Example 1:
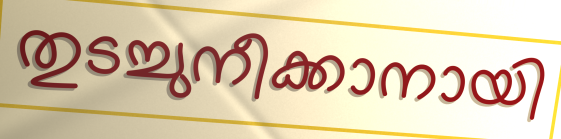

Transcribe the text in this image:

തുടച്ചുനീക്കാനായി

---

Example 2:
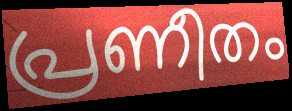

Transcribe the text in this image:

പ്രണീതം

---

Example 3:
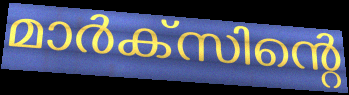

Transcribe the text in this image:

മാർക്‌സിന്റെ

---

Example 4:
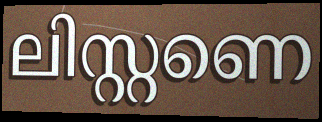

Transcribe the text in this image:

ലിസ്റ്റണെ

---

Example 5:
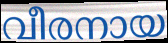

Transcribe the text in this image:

വീരനായ